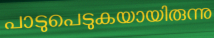
പാടുപെടുകയായിരുന്നു